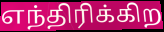
எந்திரிக்கிற